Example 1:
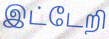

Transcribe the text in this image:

இட்டேறி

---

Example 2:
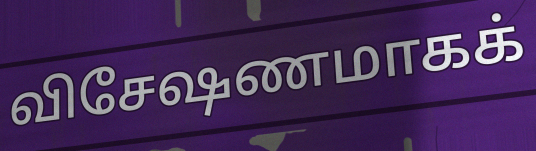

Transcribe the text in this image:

விசேஷணமாகக்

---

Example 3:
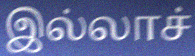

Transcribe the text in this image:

இல்லாச்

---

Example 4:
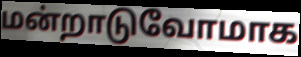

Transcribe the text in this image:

மன்றாடுவோமாக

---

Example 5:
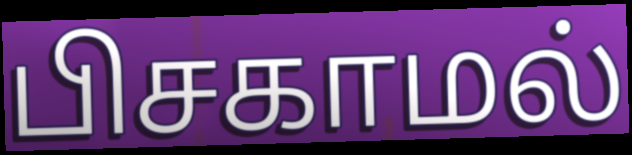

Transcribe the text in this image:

பிசகாமல்